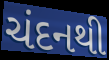
ચંદનથી